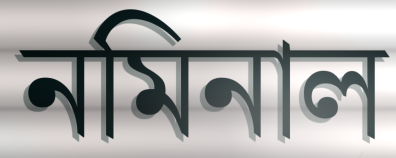
নমিনাল